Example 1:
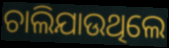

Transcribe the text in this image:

ଚାଲିଯାଉଥିଲେ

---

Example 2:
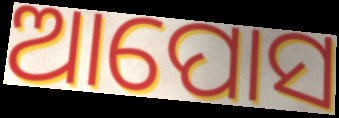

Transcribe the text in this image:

ଆପୋସ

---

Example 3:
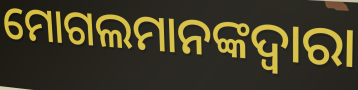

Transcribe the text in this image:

ମୋଗଲମାନଙ୍କଦ୍ୱାରା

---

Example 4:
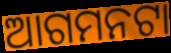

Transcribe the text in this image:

ଆଗମନଟା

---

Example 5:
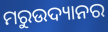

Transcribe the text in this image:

ମରୁଉଦ୍ୟାନର